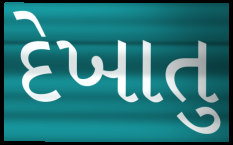
દેખાતુ